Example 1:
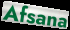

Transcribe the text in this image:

Afsana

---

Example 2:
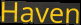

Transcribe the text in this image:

Haven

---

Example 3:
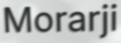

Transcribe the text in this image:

Morarji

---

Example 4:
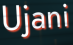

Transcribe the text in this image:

Ujani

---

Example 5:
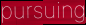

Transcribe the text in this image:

pursuing